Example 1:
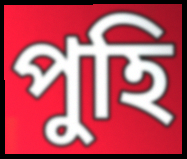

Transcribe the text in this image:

পুহি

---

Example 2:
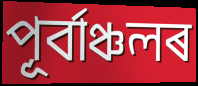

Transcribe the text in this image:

পূৰ্বাঞ্চলৰ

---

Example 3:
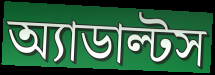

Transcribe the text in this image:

অ্যাডাল্টস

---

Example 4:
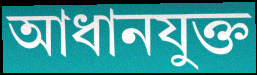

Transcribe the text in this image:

আধানযুক্ত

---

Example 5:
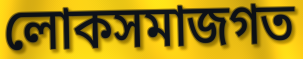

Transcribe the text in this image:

লোকসমাজগত